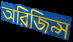
অরিজিন্স